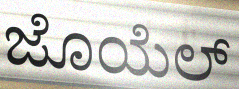
ಜೊಯೆಲ್